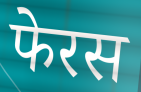
फेरस